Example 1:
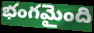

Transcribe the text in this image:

భంగమైంది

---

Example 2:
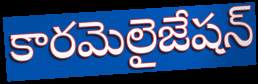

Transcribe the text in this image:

కారమెలైజేషన్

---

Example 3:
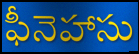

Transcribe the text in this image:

ఫీనెహాసు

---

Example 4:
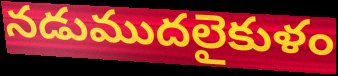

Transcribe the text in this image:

నడుముదలైకుళం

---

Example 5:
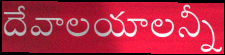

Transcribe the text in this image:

దేవాలయాలన్నీ